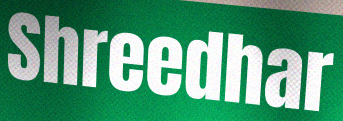
Shreedhar